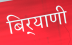
बिर्याणी